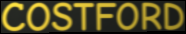
COSTFORD